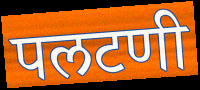
पलटणी